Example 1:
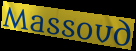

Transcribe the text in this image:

Massoud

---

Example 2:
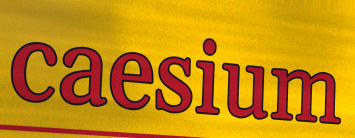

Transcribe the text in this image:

caesium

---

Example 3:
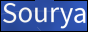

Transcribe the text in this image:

Sourya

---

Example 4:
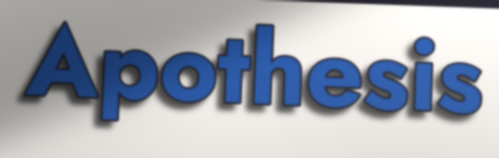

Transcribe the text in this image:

Apothesis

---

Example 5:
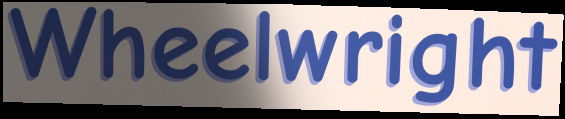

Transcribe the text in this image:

Wheelwright